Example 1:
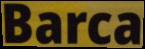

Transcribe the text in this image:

Barca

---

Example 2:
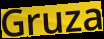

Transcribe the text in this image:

Gruza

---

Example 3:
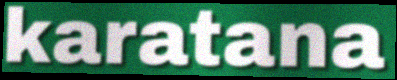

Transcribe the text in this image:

karatana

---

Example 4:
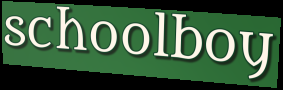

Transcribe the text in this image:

schoolboy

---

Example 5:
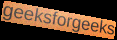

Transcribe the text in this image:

geeksforgeeks